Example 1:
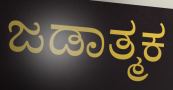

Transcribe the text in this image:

ಜಡಾತ್ಮಕ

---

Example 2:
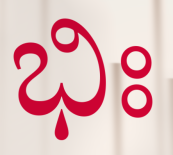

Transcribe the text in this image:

ಭಿಃ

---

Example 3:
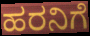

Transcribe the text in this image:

ಹರನಿಗೆ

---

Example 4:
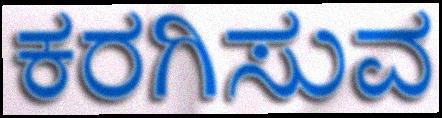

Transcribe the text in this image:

ಕರಗಿಸುವ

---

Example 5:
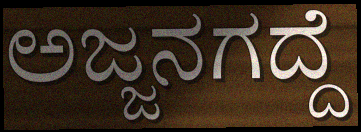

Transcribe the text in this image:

ಅಜ್ಜನಗದ್ದೆ